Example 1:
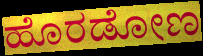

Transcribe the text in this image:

ಹೊರಡೋಣ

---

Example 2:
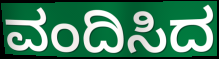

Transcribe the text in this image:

ವಂದಿಸಿದ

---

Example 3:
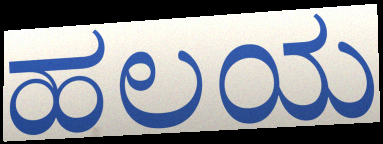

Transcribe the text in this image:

ಹಲಯ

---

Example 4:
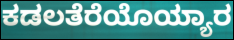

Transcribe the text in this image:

ಕಡಲತೆರೆಯೊಯ್ಯಾರ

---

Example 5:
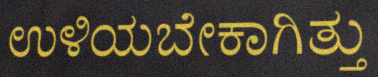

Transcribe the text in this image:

ಉಳಿಯಬೇಕಾಗಿತ್ತು